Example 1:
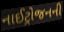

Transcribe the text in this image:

નાઈટ્રોજનની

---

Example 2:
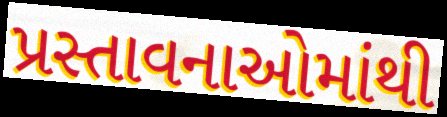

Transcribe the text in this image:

પ્રસ્તાવનાઓમાંથી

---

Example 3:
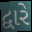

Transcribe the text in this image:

દ્વારે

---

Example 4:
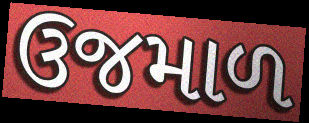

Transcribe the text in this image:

ઉજમાળ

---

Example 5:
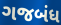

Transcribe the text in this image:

ગજબંધ